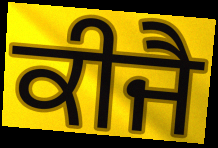
ਕੀਜੈ